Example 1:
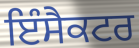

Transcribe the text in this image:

ਇੰਸੈਕਟਰ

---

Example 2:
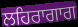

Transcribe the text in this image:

ਲਹਿਰਾਗਾਗ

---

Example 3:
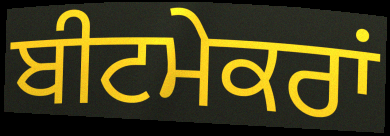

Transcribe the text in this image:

ਬੀਟਮੇਕਰਾਂ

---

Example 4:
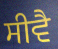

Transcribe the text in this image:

ਸੀਵੈ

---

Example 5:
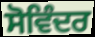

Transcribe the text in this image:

ਸੋਵਿੰਦਰ